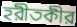
হরীতকীর